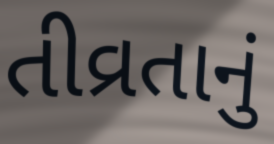
તીવ્રતાનું